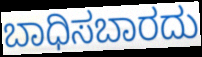
ಬಾಧಿಸಬಾರದು